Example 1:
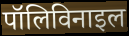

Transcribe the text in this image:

पॉलिविनाइल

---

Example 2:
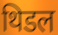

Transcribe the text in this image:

थिडल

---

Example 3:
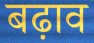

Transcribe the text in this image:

बढ़ाव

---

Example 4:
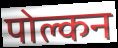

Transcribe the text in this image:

पोल्कन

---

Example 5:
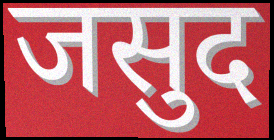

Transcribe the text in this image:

जसुद